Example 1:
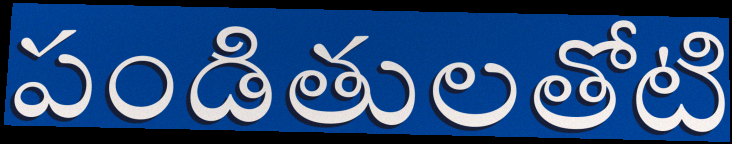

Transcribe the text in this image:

పండితులతోటి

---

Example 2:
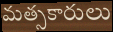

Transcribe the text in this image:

మత్సకారులు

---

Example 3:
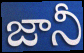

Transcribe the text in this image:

జానీ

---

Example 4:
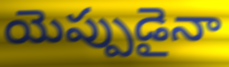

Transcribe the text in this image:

యెప్పుడైనా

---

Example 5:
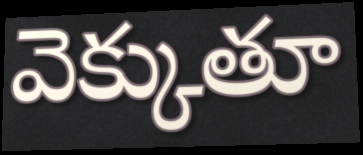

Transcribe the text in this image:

వెక్కుతూ